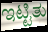
ಇಟ್ಟಿತು